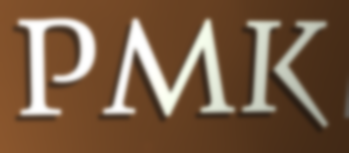
PMK